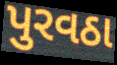
પુરવઠા